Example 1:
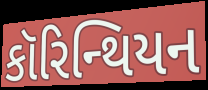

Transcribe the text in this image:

કૉરિન્થિયન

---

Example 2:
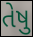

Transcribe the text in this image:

તેષુ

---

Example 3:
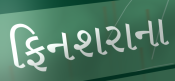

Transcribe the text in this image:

ફિનશરાના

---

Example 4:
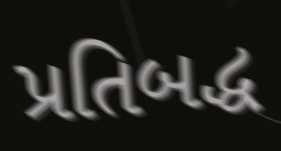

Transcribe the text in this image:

પ્રતિબદ્ધ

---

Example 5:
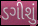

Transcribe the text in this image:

ડગીશું